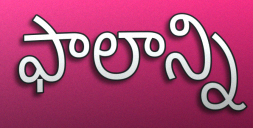
ఫాలాన్ని